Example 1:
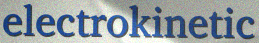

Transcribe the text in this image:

electrokinetic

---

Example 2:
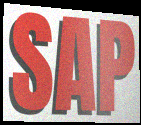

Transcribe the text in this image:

SAP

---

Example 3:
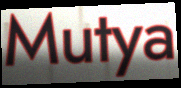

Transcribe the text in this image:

Mutya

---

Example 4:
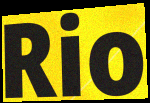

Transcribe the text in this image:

Rio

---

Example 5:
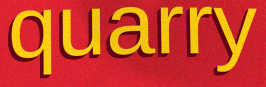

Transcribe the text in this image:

quarry